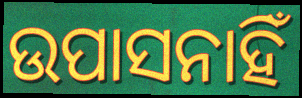
ଉପାସନାହିଁ